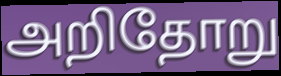
அறிதோறு